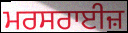
ਮਰਸਰਾਈਜ਼